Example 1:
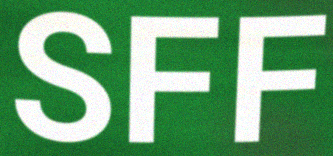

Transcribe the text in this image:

SFF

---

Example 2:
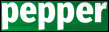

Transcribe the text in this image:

pepper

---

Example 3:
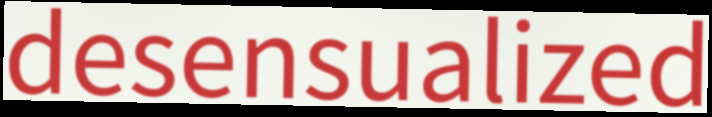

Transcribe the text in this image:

desensualized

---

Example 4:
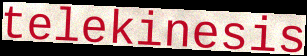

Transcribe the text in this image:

telekinesis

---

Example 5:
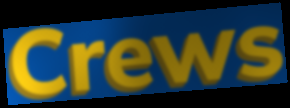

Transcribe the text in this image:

Crews